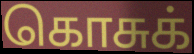
கொசுக்